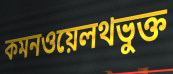
কমনওয়েলথভুক্ত